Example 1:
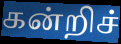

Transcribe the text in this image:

கன்றிச்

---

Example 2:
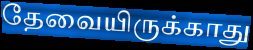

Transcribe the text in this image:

தேவையிருக்காது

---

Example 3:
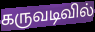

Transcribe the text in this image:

கருவடிவில்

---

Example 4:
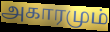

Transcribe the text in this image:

அகாரமும்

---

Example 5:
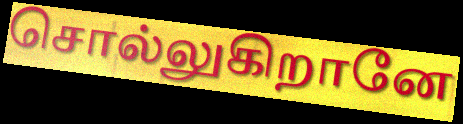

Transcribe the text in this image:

சொல்லுகிறானே